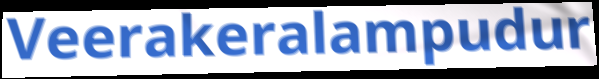
Veerakeralampudur